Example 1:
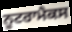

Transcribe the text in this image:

ਨੂਟਰਾਮੈਕਸ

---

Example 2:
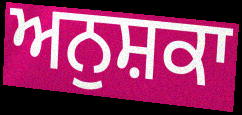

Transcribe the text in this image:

ਅਨੁਸ਼ਕਾ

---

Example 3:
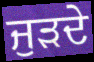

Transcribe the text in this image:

ਜੁੜਦੇ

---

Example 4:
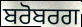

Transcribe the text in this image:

ਬਰੋਬਰਗ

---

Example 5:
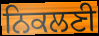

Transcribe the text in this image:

ਨਿਕਲਣੀ